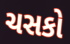
ચસકો